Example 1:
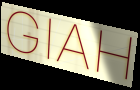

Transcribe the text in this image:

GIAH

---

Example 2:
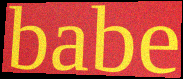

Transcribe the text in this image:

babe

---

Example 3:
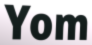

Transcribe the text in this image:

Yom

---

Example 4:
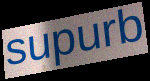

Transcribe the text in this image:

supurb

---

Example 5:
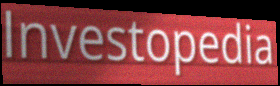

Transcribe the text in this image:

Investopedia